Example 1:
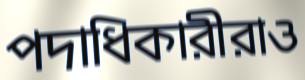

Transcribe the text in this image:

পদাধিকারীরাও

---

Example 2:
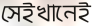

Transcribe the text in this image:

সেইখানেই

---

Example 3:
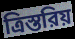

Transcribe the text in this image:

ত্রিস্তরিয়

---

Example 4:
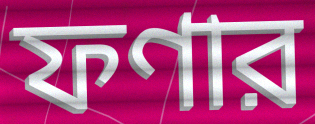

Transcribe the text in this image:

ফণার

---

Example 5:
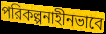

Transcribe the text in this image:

পরিকল্পনাহীনভাবে